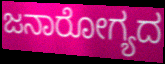
ಜನಾರೋಗ್ಯದ